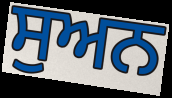
ਸੁਅਨ